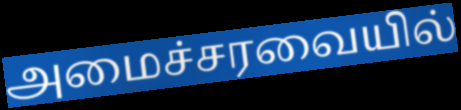
அமைச்சரவையில்